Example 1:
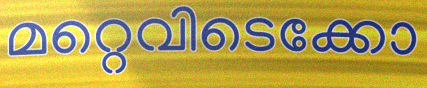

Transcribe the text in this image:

മറ്റെവിടെക്കോ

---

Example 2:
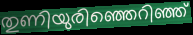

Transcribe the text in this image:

തുണിയുരിഞ്ഞെറിഞ്ഞ്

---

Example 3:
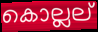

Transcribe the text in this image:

കൊല്ലല്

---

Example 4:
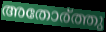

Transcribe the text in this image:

അതോര്ത്തു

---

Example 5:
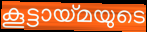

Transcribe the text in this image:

കൂട്ടായ്മയുടെ